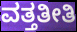
ವತ್ತತೀತಿ